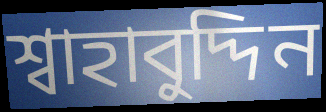
শ্বাহাবুদ্দিন